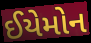
ઈયેમોન